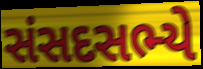
સંસદસભ્યે